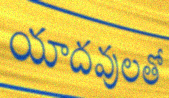
యాదవులతో